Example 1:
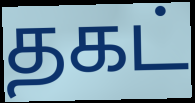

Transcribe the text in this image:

தகட்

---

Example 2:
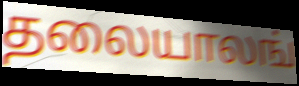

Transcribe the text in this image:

தலையாலங்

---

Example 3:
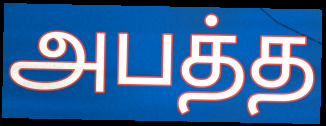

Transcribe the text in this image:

அபத்த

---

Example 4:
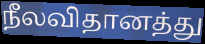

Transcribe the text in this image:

நீலவிதானத்து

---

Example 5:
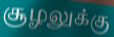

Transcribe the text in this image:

சூழலுக்கு